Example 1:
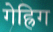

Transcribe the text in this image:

गेह्रिग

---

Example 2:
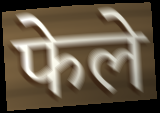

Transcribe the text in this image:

फेले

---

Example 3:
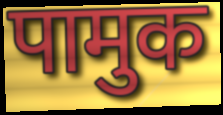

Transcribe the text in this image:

पामुक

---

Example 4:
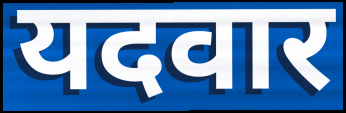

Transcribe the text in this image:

यदवार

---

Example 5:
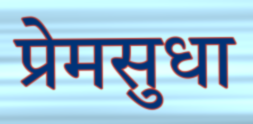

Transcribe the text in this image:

प्रेमसुधा